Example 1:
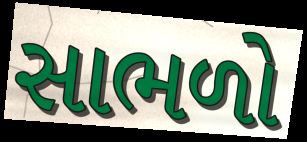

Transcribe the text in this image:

સાભળો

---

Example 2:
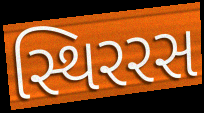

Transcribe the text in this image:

સ્થિરરસ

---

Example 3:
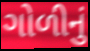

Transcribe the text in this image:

ગોળીનું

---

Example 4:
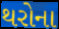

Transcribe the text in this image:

થરોના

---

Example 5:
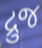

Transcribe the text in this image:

દ્રુજ